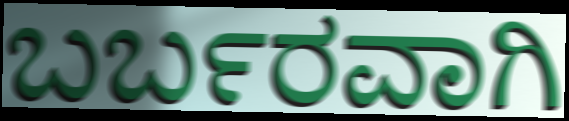
ಬರ್ಬರವಾಗಿ